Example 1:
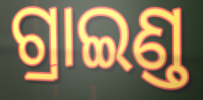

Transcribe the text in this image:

ଗ୍ରାଇଣ୍ଡ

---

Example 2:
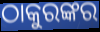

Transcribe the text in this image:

ଠାକୁରଙ୍କର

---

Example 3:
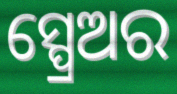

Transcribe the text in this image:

ସ୍ପ୍ରେଅର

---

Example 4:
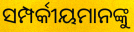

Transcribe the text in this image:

ସମ୍ପର୍କୀୟମାନଙ୍କୁ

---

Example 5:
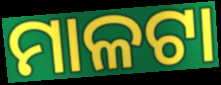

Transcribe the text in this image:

ମାଳଟା